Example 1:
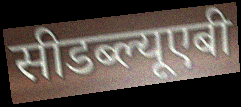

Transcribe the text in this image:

सीडब्ल्यूएबी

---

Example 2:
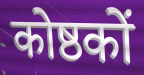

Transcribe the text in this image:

कोष्ठकों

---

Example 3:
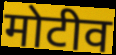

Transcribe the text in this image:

मोटीव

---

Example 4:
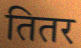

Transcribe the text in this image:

तितर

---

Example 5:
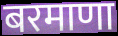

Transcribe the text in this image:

बरमाणा